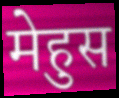
मेहुस